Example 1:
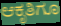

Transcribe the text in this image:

ಆಕೃತಿಗೂ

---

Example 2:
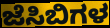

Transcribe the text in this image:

ಜೆಸಿಬಿಗಳ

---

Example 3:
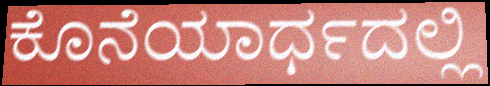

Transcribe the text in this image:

ಕೊನೆಯಾರ್ಧದಲ್ಲಿ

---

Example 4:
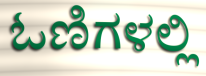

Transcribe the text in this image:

ಓಣಿಗಳಲ್ಲಿ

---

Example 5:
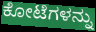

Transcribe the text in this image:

ಕೋಟೆಗಳನ್ನು